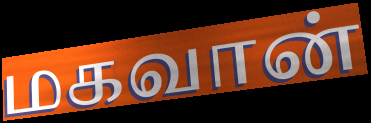
மகவான்